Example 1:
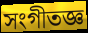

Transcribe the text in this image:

সংগীতজ্ঞ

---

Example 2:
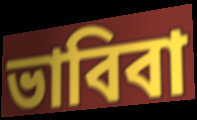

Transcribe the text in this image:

ভাবিবা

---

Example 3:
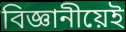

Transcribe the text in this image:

বিজ্ঞানীয়েই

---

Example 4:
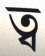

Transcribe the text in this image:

ত্ব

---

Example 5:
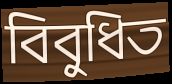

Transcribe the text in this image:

বিবুধিত